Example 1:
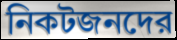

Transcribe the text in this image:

নিকটজনদের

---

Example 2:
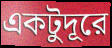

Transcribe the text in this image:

একটুদূরে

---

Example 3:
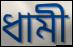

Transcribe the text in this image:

ধামী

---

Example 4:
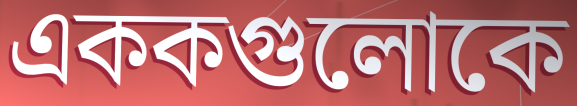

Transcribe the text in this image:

এককগুলোকে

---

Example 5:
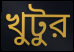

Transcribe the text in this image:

খুটুর